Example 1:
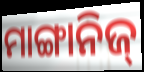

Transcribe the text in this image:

ମାଙ୍ଗାନିଜ୍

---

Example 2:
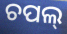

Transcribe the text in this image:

ଚପଲ୍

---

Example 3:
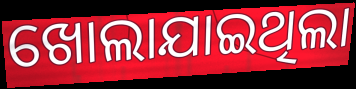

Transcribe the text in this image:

ଖୋଲାଯାଇଥିଲା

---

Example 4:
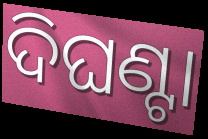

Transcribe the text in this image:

ଦିଘଣ୍ଟା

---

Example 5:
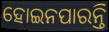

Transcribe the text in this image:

ହୋଇନପାରନ୍ତି